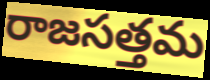
రాజసత్తమ